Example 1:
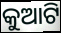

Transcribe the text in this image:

କୁଆଟି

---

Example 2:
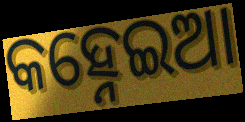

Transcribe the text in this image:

କହ୍ନେଇଆ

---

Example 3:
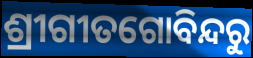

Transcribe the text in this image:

ଶ୍ରୀଗୀତଗୋବିନ୍ଦରୁ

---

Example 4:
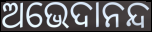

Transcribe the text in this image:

ଅଭେଦାନନ୍ଦ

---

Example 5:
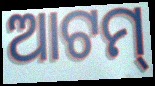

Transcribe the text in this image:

ଆଟମ୍